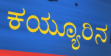
ಕಯ್ಯೂರಿನ